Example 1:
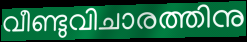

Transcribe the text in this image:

വീണ്ടുവിചാരത്തിനു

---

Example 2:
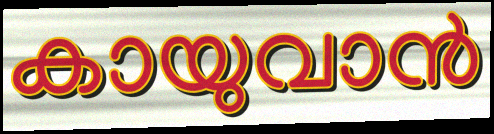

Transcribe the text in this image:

കായുവാൻ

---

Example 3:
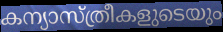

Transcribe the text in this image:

കന്യാസ്ത്രീകളുടെയും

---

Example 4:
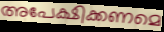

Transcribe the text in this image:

അപേക്ഷിക്കണമെ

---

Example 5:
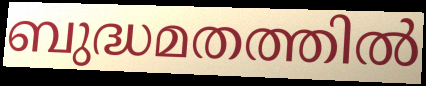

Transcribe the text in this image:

ബുദ്ധമതത്തിൽ